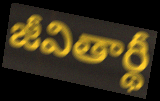
జీవితార్థీ